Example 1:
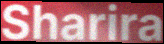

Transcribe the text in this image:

Sharira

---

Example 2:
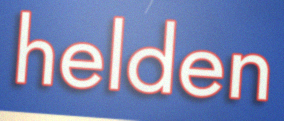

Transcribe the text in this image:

helden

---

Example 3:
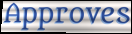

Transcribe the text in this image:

Approves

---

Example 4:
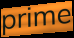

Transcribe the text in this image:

prime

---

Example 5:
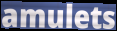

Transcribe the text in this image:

amulets